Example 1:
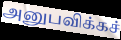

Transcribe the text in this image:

அனுபவிக்கச்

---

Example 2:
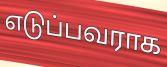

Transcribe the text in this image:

எடுப்பவராக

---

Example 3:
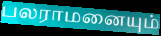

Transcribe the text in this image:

பலராமனையும்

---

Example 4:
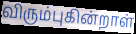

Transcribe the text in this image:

விரும்புகின்றாள்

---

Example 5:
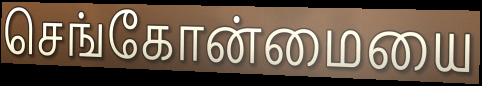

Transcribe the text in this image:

செங்கோன்மையை